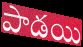
పాడయి